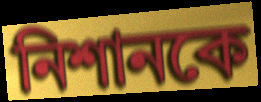
নিশানকে